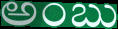
అంబు